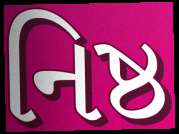
નિષ્ઠ